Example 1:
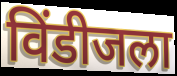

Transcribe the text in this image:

विंडीजला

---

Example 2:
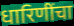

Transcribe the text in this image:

धारिणींचा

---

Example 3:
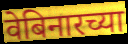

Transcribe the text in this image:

वेबिनारच्या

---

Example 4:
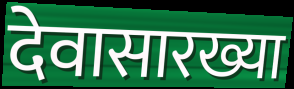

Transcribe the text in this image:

देवासारख्या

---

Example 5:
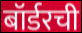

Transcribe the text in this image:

बॉर्डरची